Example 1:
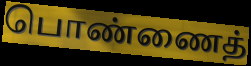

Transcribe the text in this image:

பொண்ணைத்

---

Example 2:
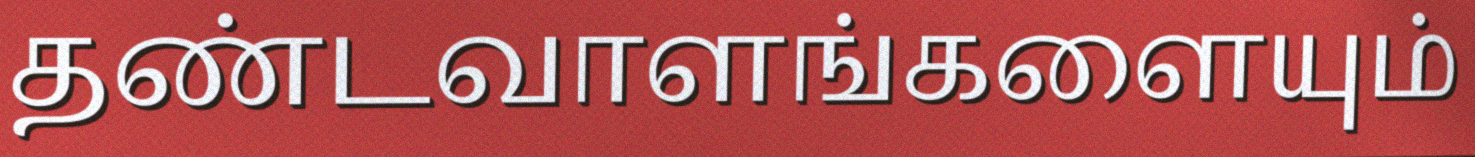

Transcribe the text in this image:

தண்டவாளங்களையும்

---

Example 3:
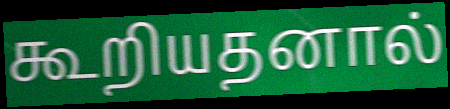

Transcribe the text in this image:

கூறியதனால்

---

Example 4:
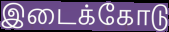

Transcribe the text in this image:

இடைக்கோடு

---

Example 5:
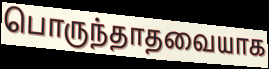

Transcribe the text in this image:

பொருந்தாதவையாக